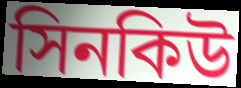
সিনকিউ